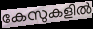
കേസുകളിൽ